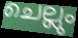
ചെല്ലും